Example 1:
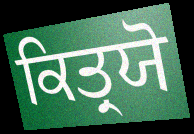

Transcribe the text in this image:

ਕਿਤ੍ਰਯੋ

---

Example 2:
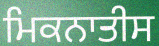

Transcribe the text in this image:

ਮਿਕਨਾਤੀਸ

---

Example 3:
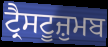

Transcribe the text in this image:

ਟ੍ਰੈਸਟੂਜ਼ੁਮਬ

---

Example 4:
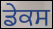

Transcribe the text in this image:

ਡੇਕਸ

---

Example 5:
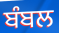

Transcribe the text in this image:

ਬੰਬਲ